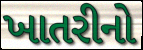
ખાતરીનો